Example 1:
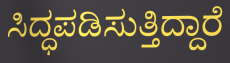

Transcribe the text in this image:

ಸಿದ್ಧಪಡಿಸುತ್ತಿದ್ದಾರೆ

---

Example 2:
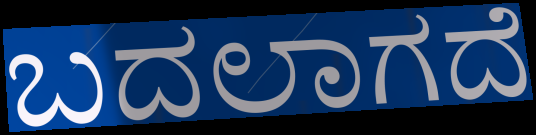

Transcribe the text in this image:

ಬದಲಾಗದೆ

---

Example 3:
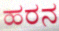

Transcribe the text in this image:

ಹರನ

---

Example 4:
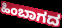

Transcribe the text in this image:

ಹಿಂಬಾಗದ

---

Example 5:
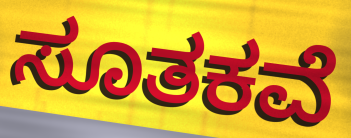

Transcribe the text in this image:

ಸೂತಕವೆ